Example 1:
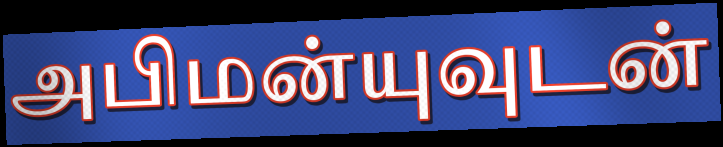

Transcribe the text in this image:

அபிமன்யுவுடன்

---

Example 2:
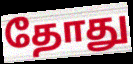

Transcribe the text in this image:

தோது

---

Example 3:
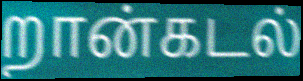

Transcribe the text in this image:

றான்கடல்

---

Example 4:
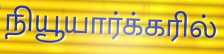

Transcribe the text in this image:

நியூயார்க்கரில்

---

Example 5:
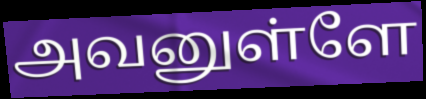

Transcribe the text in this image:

அவனுள்ளே